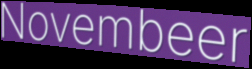
Novembeer